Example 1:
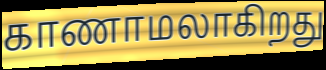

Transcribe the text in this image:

காணாமலாகிறது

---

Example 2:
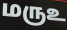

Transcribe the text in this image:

மருஉ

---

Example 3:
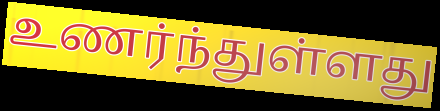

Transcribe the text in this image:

உணர்ந்துள்ளது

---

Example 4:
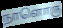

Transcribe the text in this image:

நாளொரு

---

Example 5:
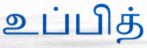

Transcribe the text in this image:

உப்பித்